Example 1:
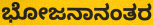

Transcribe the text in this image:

ಭೋಜನಾನಂತರ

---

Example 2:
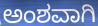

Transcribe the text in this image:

ಅಂಶವಾಗಿ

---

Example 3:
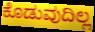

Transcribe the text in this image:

ಕೊಡುವುದಿಲ್ಲ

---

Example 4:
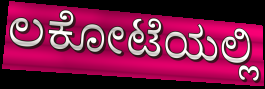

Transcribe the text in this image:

ಲಕೋಟೆಯಲ್ಲಿ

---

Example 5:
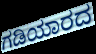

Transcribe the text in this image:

ಗಡಿಯಾರದ